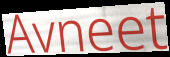
Avneet